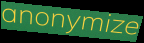
anonymize